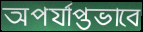
অপর্যাপ্তভাবে